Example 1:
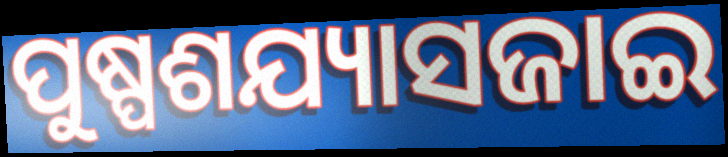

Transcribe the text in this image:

ପୁଷ୍ପଶଯ୍ୟାସଜାଇ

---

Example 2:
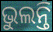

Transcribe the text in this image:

ଭୁଲନ୍ତି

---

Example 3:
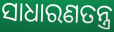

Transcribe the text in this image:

ସାଧାରଣତନ୍ତ୍ର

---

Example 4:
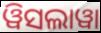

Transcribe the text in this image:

ୱିସଲାୱା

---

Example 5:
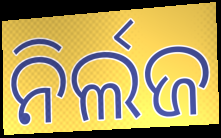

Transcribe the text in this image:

ନିର୍ଲଜ